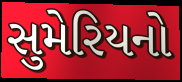
સુમેરિયનો